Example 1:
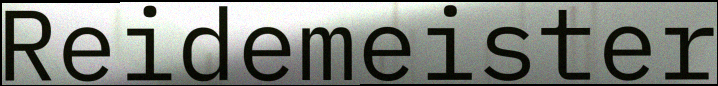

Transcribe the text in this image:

Reidemeister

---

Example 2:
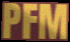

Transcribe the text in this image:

PFM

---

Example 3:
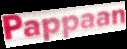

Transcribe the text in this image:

Pappaan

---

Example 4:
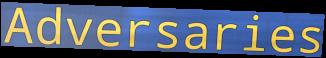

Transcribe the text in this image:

Adversaries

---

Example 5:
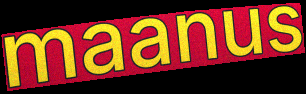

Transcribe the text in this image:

maanus